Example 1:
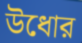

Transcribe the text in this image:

উধোর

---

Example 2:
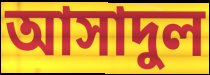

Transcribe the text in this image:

আসাদুল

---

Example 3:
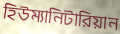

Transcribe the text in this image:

হিউম্যানিটারিয়ান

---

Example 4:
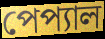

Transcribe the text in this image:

পেপ্যাল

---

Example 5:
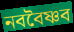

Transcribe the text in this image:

নববৈষ্ণব